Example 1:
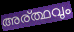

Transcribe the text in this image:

അര്ത്ഥവും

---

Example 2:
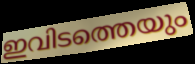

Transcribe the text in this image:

ഇവിടത്തെയും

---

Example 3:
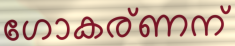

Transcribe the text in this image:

ഗോകര്ണന്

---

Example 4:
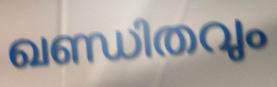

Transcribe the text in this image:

ഖണ്ഡിതവും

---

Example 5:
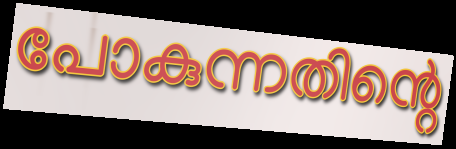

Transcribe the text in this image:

പോകുന്നതിന്റെ